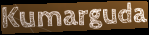
Kumarguda